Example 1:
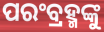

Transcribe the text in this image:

ପରଂବ୍ରହ୍ମଙ୍କୁ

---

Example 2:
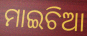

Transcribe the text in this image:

ମାଇଚିଆ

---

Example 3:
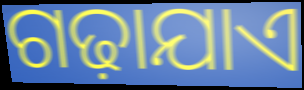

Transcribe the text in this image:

ଗଢ଼ାଯାଏ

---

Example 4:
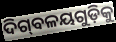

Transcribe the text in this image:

ଦିଗ୍‌ବଳୟଗୁଡ଼ିକୁ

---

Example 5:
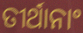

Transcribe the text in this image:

ତୀର୍ଥାନାଂ